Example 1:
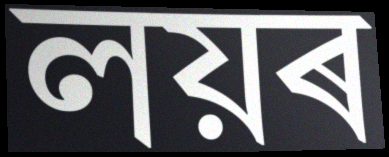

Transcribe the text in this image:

লয়ৰ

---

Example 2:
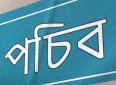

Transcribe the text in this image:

পচিব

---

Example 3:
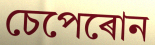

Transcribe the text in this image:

চেপেৰোন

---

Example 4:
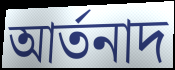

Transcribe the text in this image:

আৰ্তনাদ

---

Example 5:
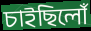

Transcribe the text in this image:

চাইছিলোঁ